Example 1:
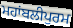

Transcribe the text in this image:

ਮਹਾਂਬਲੀਪੁਰਮ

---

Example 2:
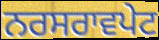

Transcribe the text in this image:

ਨਰਸਰਾਵਪੇਟ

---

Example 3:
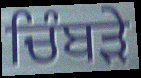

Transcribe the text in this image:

ਚਿੰਬਡ਼ੇ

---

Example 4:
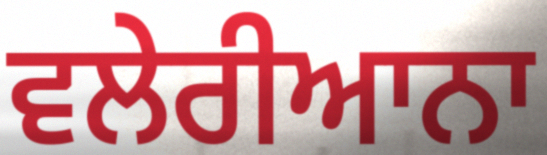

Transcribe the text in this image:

ਵਲੇਰੀਆਨਾ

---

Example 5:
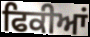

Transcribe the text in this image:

ਫਿਕੀਆਂ